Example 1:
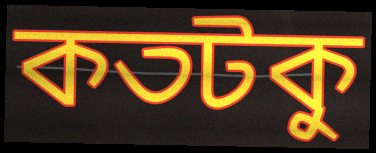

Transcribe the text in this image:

কতটকু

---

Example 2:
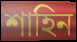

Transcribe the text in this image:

শাহিন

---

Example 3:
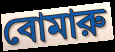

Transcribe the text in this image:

বোমারু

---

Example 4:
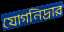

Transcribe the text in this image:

যোগনিদ্রার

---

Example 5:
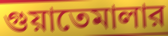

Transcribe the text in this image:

গুয়াতেমালার